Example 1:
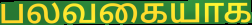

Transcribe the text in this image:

பலவகையாக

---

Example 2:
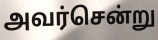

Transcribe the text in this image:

அவர்சென்று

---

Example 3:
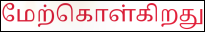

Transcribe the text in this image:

மேற்கொள்கிறது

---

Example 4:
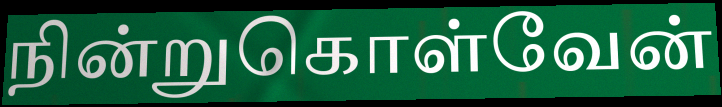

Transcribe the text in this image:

நின்றுகொள்வேன்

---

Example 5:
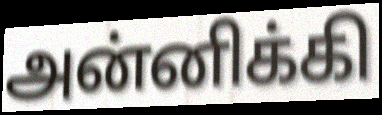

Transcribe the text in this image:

அன்னிக்கி